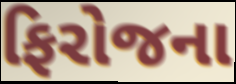
ફિરોજના